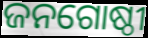
ଜନଗୋଷ୍ଠୀ